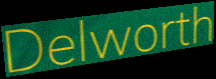
Delworth